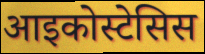
आइकोस्टेसिस